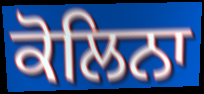
ਕੋਲਿਨਾ